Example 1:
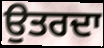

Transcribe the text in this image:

ਉਤਰਦਾ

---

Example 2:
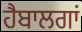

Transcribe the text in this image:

ਹੈਬਾਲਗਾਂ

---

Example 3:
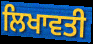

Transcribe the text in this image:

ਲਿਖਾਵਤੀ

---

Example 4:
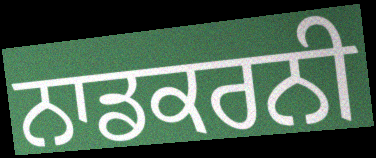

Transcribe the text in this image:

ਨਾਡਕਰਨੀ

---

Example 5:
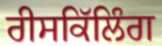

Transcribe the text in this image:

ਰੀਸਕਿੱਲਿੰਗ